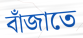
বাঁজাতে